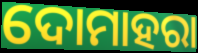
ଦୋମାହରା